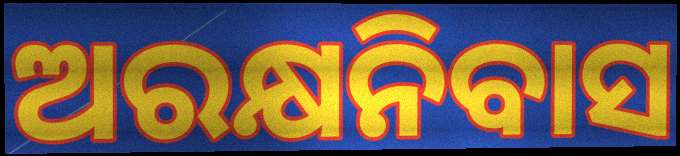
ଅରକ୍ଷନିବାସ